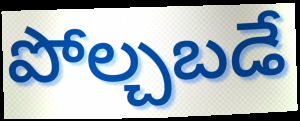
పోల్చబడే